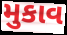
મુકાવ